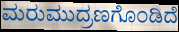
ಮರುಮುದ್ರಣಗೊಂಡಿದೆ